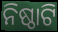
ନିଷ୍ଠାଟି